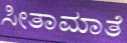
ಸೀತಾಮಾತೆ